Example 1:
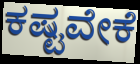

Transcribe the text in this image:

ಕಷ್ಟವೇಕೆ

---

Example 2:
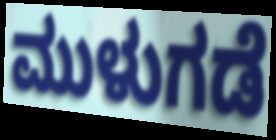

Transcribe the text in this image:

ಮುಳುಗಡೆ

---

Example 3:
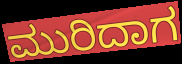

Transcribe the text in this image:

ಮುರಿದಾಗ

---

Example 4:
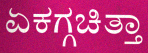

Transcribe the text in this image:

ಏಕಗ್ಗಚಿತ್ತಾ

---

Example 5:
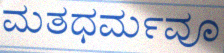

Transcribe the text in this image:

ಮತಧರ್ಮವೂ